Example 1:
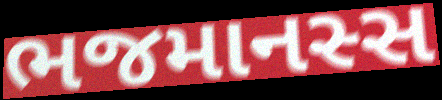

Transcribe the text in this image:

ભજમાનસ્સ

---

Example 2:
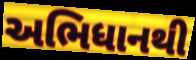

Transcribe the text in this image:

અભિધાનથી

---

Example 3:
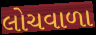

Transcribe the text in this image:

લોચવાળા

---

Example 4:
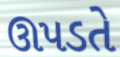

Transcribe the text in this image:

ઊપડતે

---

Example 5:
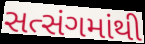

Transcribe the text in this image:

સત્સંગમાંથી